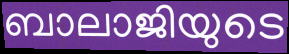
ബാലാജിയുടെ